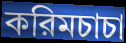
করিমচাচা